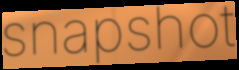
snapshot